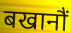
बखानौं